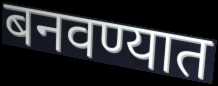
बनवण्यात